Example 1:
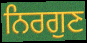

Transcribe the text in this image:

ਨਿਰਗੁਣ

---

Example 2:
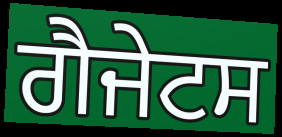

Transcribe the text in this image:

ਗੈਜੇਟਸ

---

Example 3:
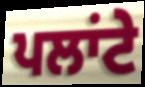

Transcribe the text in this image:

ਪਲਾਂਟੇ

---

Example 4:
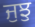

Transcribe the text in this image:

ਜੁਝੁ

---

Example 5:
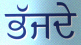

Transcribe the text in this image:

ਭੱਜਦੇ